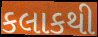
કલાકથી